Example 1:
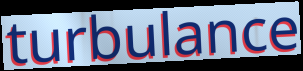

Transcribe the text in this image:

turbulance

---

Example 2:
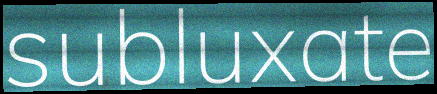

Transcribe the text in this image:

subluxate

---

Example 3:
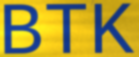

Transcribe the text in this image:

BTK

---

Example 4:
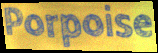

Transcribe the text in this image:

Porpoise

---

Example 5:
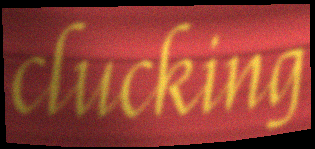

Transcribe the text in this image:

clucking